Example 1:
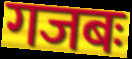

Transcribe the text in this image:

गजबः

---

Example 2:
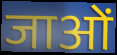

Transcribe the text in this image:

जाओं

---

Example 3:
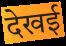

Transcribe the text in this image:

देखई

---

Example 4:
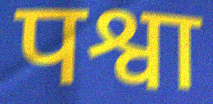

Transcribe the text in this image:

पश्वा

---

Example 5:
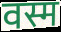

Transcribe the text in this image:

वस्म